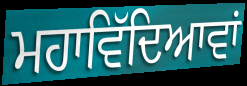
ਮਹਾਵਿੱਦਿਆਵਾਂ